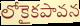
లోకైకపావన